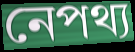
নেপথ্য